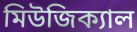
মিউজিক্যাল